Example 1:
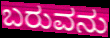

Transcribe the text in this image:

ಬರುವನು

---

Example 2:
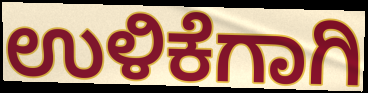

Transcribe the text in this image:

ಉಳಿಕೆಗಾಗಿ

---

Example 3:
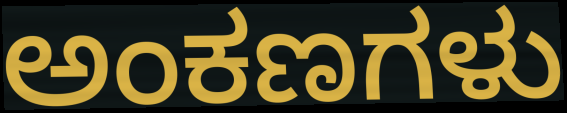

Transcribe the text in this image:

ಅಂಕಣಗಳು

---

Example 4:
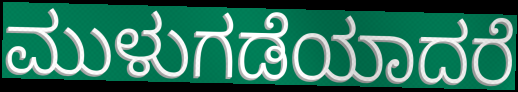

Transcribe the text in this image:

ಮುಳುಗಡೆಯಾದರೆ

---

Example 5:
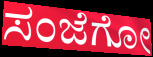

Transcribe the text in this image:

ಸಂಜೆಗೋ